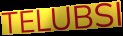
TELUBSI